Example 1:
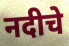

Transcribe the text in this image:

नदीचे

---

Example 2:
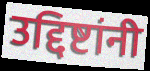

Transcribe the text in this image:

उद्दिष्टांनी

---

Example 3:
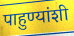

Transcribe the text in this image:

पाहुण्यांशी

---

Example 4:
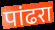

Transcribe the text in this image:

पांढरा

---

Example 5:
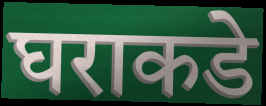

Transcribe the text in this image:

घराकडे